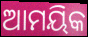
ଆମୟିକ